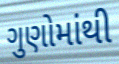
ગુણોમાંથી